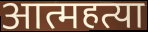
आत्महत्या